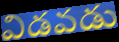
విడవడు